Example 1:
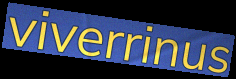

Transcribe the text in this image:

viverrinus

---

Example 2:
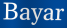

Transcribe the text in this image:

Bayar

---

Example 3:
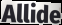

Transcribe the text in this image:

Allide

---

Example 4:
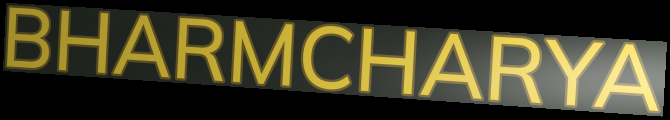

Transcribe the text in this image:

BHARMCHARYA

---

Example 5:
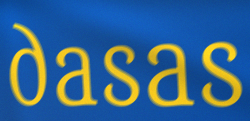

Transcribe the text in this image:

dasas